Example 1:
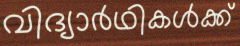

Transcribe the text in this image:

വിദ്യാർഥികൾക്ക്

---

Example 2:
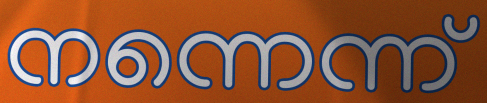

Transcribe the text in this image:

നന്നെന്ന്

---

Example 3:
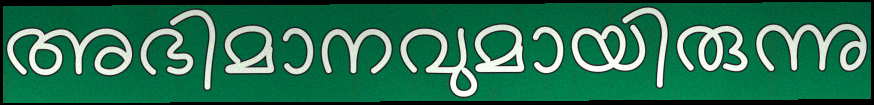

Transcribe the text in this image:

അഭിമാനവുമായിരുന്നു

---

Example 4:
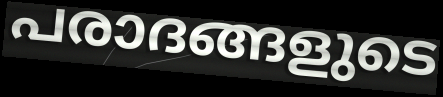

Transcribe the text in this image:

പരാദങ്ങളുടെ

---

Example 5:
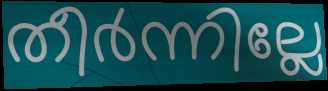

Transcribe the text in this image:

തീർന്നില്ലേ